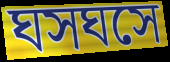
ঘসঘসে